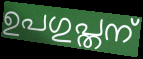
ഉപഗുപ്തന്